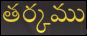
తర్కము